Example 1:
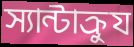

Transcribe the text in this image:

স্যান্টাক্রুয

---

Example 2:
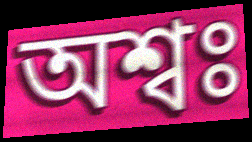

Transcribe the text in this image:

অশ্বঃ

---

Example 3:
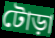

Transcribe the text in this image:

টোড়া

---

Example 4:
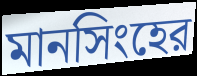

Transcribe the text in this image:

মানসিংহের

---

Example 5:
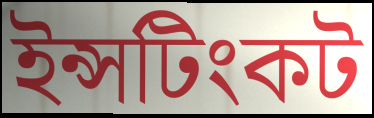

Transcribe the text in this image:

ইন্সটিংকট